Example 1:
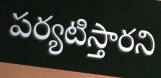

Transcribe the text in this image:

పర్యటిస్తారని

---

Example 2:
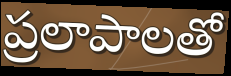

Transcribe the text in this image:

ప్రలాపాలతో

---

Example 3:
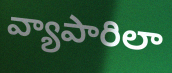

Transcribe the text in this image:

వ్యాపారిలా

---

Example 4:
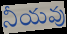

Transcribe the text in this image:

నీయవు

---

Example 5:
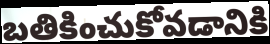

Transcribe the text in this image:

బతికించుకోవడానికి